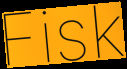
Fisk